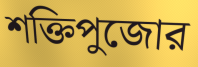
শক্তিপুজোর